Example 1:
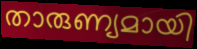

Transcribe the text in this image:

താരുണ്യമായി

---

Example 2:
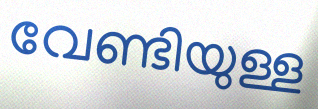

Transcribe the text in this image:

വേണ്ടിയുള്ള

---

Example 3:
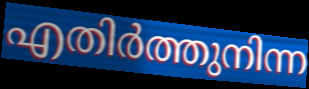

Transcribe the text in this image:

എതിർത്തുനിന്ന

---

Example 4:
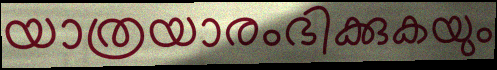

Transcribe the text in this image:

യാത്രയാരംഭിക്കുകയും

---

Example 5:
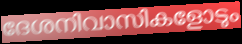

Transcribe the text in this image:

ദേശനിവാസികളോടും